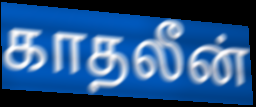
காதலீன்